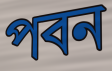
পবন